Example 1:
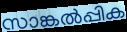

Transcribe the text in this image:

സാങ്കൽപ്പിക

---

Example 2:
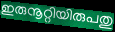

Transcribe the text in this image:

ഇരുനൂറ്റിയിരുപതു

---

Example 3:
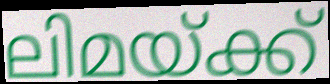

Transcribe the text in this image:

ലിമയ്ക്ക്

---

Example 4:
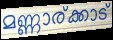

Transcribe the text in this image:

മണ്ണാര്ക്കാട്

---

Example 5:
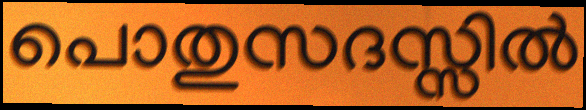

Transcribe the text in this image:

പൊതുസദസ്സിൽ